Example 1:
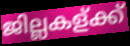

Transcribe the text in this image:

ജില്ലകള്ക്ക്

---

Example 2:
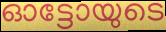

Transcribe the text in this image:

ഓട്ടോയുടെ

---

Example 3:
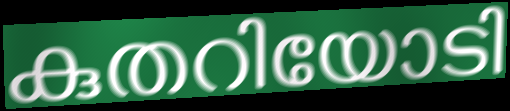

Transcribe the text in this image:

കുതറിയോടി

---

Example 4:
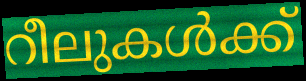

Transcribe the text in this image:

റീലുകൾക്ക്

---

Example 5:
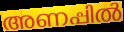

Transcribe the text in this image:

അണപ്പിൽ